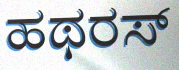
ಹಥರಸ್